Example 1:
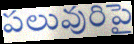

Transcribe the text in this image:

పలువురిపై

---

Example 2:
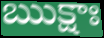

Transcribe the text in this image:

ఋక్షాః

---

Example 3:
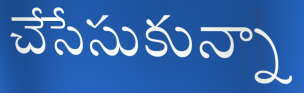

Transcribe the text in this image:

చేసేసుకున్నా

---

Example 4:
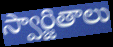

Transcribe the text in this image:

స్వార్జితాలు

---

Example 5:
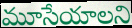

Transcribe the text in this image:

మూసేయాలని